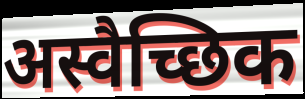
अस्वैच्छिक